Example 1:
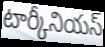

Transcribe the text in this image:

టార్కీనియస్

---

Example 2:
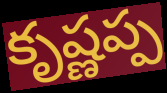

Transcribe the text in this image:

కృష్ణప్ప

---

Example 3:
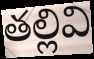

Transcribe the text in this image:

తల్లివి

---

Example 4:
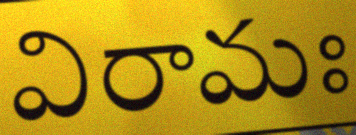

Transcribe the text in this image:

విరామః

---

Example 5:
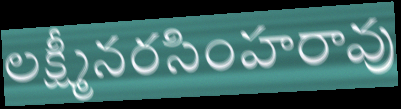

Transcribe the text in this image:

లక్ష్మీనరసింహరావు